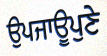
ਉਪਜਾਊਪੁਣੇ